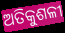
ଅତିକୁଶଳୀ